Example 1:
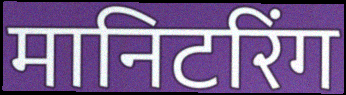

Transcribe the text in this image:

मानिटरिंग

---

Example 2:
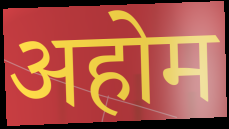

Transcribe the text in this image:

अहोम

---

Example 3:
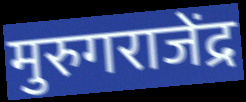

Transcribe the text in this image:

मुरुगराजेंद्र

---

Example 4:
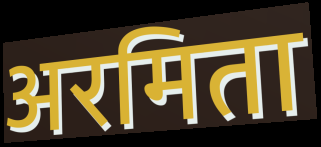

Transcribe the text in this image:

अरमिता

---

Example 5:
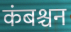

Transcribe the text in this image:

कंबश्चन